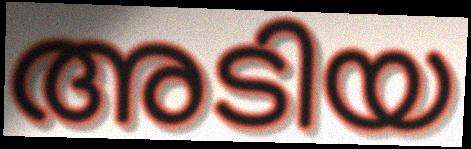
അടിയ